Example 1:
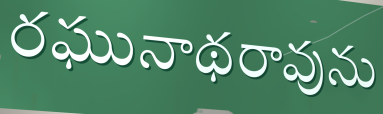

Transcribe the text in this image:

రఘునాథరావును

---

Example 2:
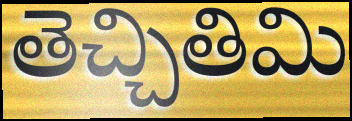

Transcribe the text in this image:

తెచ్చితిమి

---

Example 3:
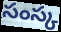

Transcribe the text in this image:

సంస్క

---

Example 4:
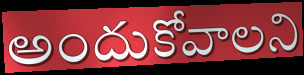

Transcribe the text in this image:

అందుకోవాలని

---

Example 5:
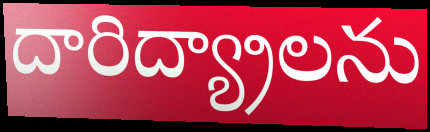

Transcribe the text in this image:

దారిద్య్రాలను